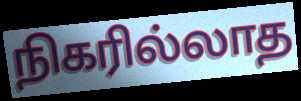
நிகரில்லாத